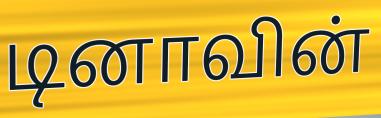
டினாவின்